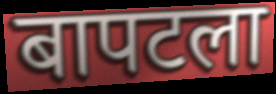
बापटला